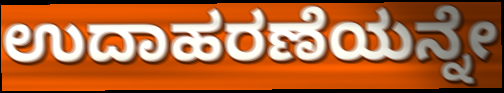
ಉದಾಹರಣೆಯನ್ನೇ